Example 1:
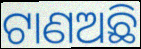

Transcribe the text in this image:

ଟାଣଅଛି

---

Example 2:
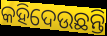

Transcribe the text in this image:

କହିଦେଉଛନ୍ତି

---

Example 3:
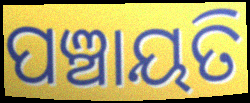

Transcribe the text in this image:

ପଞ୍ଚାୟତି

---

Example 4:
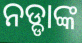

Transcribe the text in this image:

ନଡ୍ଡାଙ୍କ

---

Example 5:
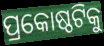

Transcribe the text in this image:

ପ୍ରକୋଷ୍ଠଟିକୁ